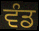
ਵੰਡ